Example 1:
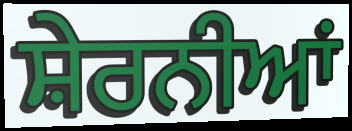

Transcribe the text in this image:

ਸ਼ੇਰਨੀਆਂ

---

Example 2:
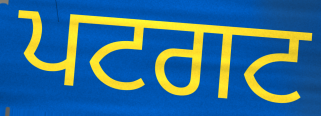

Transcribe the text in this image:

ਪਟਗਟ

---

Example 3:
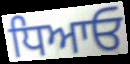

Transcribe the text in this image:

ਧਿਆਓ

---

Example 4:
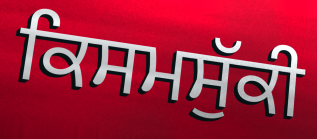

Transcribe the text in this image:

ਕਿਸਮਸੁੱਕੀ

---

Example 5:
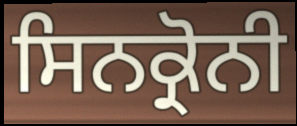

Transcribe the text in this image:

ਸਿਨਕ੍ਰੋਨੀ